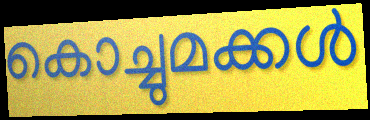
കൊച്ചുമക്കൾ